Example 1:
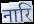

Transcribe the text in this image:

नारि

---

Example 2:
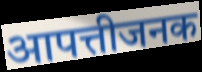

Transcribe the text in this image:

आपत्तीजनक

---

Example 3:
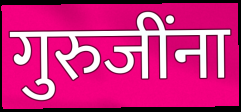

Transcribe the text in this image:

गुरुजींना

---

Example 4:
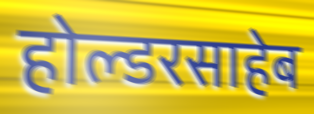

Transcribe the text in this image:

होल्डरसाहेब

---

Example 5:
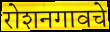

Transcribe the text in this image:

रोशनगावचे